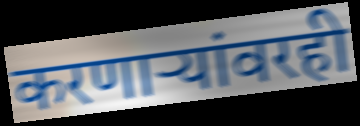
करणाऱ्यांवरही